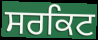
ਸਰਕਿਟ